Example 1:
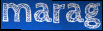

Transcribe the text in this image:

marag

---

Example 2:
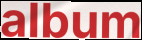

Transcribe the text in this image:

album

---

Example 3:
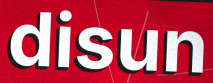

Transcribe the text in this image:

disun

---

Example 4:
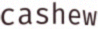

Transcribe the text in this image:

cashew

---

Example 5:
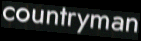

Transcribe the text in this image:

countryman